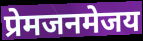
प्रेमजनमेजय